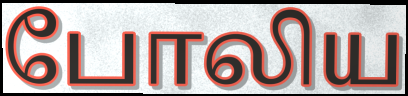
போலிய